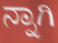
ನ್ನಾಗಿ